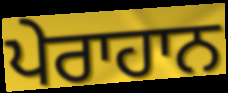
ਪੇਰਾਹਾਨ